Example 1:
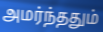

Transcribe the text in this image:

அமர்ந்ததும்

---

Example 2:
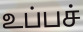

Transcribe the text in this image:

உப்பச்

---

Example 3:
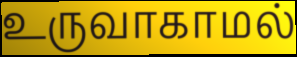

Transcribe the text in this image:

உருவாகாமல்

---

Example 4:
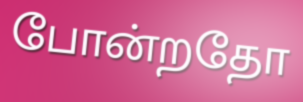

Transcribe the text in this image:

போன்றதோ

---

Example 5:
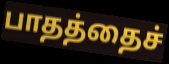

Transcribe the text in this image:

பாதத்தைச்